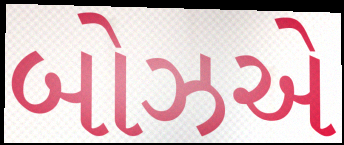
બોઝએ